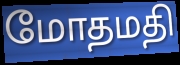
மோதமதி